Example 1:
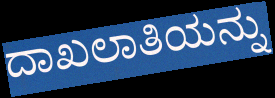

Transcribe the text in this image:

ದಾಖಲಾತಿಯನ್ನು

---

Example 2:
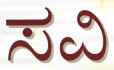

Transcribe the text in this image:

ಸವಿ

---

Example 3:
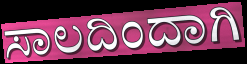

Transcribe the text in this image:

ಸಾಲದಿಂದಾಗಿ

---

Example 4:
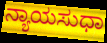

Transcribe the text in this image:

ನ್ಯಾಯಸುಧಾ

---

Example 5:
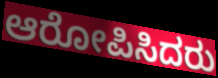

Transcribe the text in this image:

ಆರೋಪಿಸಿದರು